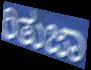
ರಿತುಜಾ